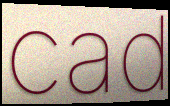
cad